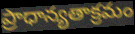
ప్రాధాన్యతాక్రమం